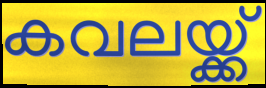
കവലയ്ക്ക്